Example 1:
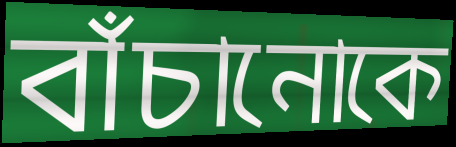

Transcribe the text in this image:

বাঁচানোকে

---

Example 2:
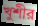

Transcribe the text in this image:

খুশীর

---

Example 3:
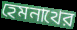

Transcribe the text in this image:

হেমনাথের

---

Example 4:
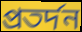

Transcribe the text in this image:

প্রতর্দন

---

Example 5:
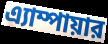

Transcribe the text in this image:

এ্যাম্পায়ার